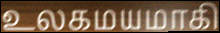
உலகமயமாகி